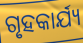
ଗୃହକାର୍ଯ୍ୟ